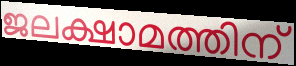
ജലക്ഷാമത്തിന്